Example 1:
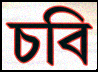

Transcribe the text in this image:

চবি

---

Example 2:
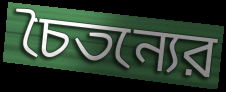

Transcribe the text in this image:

চৈতন্যের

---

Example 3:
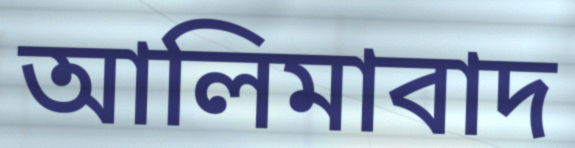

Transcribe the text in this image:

আলিমাবাদ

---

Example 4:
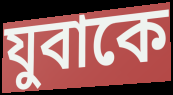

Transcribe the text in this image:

যুবাকে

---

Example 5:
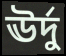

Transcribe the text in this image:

ঊর্দু